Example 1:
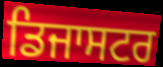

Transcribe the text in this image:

ਡਿਜਾਸਟਰ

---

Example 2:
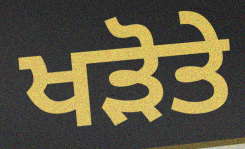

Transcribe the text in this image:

ਖੜੋਤੇ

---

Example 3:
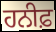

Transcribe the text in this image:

ਹਨੀਫ਼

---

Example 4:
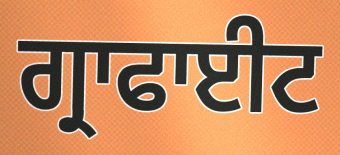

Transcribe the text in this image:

ਗ੍ਰਾਫਾਈਟ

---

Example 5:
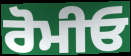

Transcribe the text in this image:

ਰੋਮੀਓ